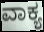
ವಾಕ್ಯ